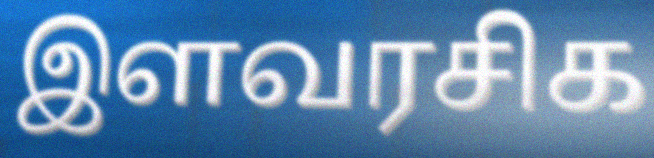
இளவரசிக